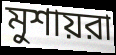
মুশায়রা